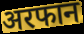
अरफान